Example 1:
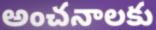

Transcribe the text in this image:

అంచనాలకు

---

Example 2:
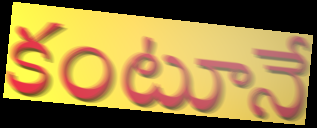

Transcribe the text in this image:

కంటూనే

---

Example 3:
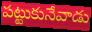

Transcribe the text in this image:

పట్టుకునేవాడు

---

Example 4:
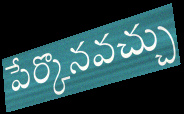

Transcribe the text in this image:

పేర్కొనవచ్చు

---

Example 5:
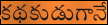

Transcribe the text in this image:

కథకుడుగానే